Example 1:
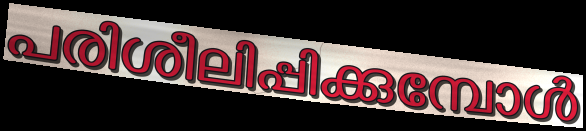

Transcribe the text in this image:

പരിശീലിപ്പിക്കുമ്പോൾ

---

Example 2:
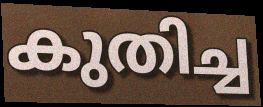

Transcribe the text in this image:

കുതിച്ച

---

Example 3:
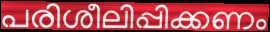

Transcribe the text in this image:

പരിശീലിപ്പിക്കണം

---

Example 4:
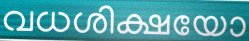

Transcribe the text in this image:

വധശിക്ഷയോ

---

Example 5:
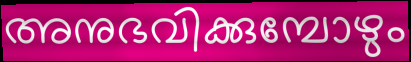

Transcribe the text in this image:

അനുഭവിക്കുമ്പോഴും